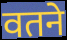
वतने